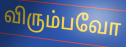
விரும்பவோ